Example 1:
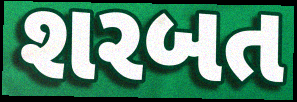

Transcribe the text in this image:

શરબત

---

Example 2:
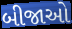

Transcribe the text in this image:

બીજાઓ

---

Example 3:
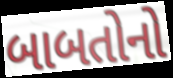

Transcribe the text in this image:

બાબતોનો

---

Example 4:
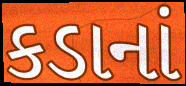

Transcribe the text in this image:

કડાનાં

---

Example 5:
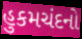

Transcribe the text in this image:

હુકમચંદનો